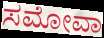
ಸಮೋವಾ